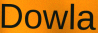
Dowla